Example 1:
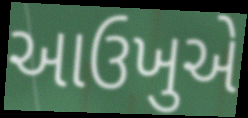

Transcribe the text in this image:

આઉખુએ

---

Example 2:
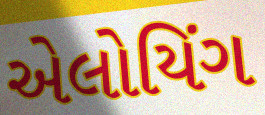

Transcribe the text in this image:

એલોયિંગ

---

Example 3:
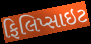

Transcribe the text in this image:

ફિલિપ્સાઇટ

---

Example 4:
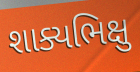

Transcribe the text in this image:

શાક્યભિક્ષુ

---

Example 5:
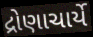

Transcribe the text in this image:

દ્રોણાચાર્યે